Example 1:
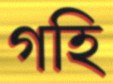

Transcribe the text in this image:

গহি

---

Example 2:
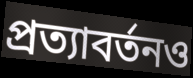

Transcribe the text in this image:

প্রত্যাবর্তনও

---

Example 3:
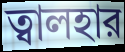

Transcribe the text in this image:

ত্বালহার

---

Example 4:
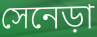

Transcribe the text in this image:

সেনেড়া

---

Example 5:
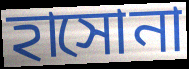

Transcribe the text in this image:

হাসোনা